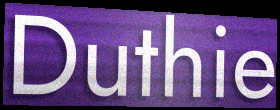
Duthie